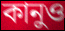
কানুও